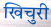
खिचुरी